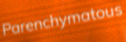
Parenchymatous